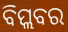
ବିପ୍ଲବର